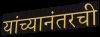
यांच्यानंतरची